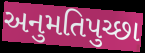
અનુમતિપુચ્છા